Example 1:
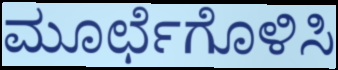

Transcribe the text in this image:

ಮೂರ್ಛೆಗೊಳಿಸಿ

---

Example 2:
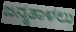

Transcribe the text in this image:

ಜನ್ಮತಾಳಲು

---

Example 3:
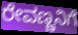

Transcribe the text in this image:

ರೇವಣ್ಣನಿಗೆ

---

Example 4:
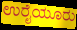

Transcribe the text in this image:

ಉರೈಯೂರು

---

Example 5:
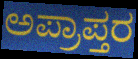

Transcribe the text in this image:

ಅಪ್ರಾಪ್ತರ